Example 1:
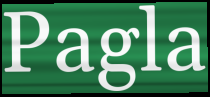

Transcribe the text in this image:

Pagla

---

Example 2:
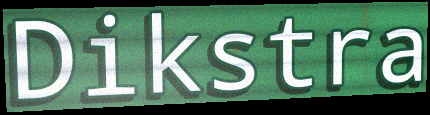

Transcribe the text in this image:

Dikstra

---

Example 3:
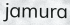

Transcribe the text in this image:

jamura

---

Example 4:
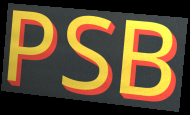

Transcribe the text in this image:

PSB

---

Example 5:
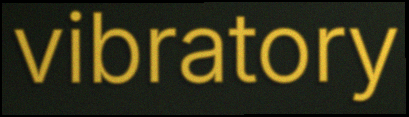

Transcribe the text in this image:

vibratory